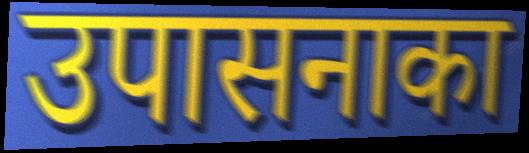
उपासनाका